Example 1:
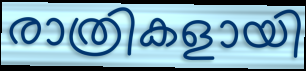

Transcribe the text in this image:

രാത്രികളായി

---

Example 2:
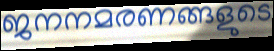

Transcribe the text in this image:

ജനനമരണങ്ങളുടെ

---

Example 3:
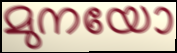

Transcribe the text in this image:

മുനയോ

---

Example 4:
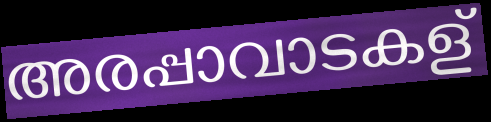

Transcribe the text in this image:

അരപ്പാവാടകള്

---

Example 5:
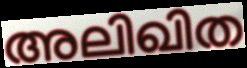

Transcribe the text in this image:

അലിഖിത